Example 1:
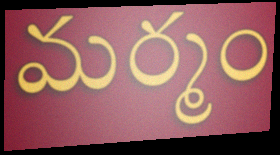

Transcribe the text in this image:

మర్మం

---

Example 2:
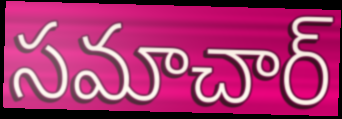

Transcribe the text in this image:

సమాచార్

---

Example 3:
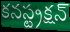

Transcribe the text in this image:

కనస్ట్రక్షన్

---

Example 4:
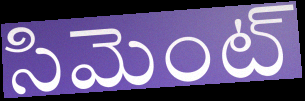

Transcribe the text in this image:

సిమెంట్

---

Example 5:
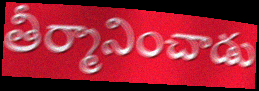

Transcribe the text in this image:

తీర్మానించాడు